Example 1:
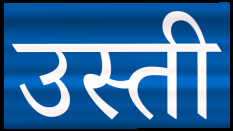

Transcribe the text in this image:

उस्ती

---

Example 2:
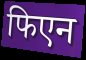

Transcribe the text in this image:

फिएन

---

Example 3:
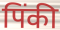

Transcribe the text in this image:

पिंकी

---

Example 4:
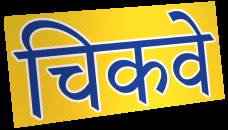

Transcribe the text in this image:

चिकवे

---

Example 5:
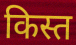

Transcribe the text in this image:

किस्त